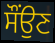
ਸੌਂਉਣ